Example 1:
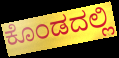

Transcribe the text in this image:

ಕೊಂಡದಲ್ಲಿ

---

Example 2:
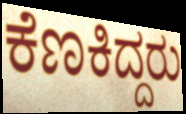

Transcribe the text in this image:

ಕೆಣಕಿದ್ದರು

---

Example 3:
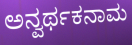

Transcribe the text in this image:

ಅನ್ವರ್ಥಕನಾಮ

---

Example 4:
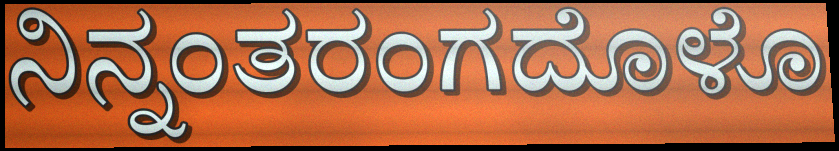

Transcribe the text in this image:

ನಿನ್ನಂತರಂಗದೊಳೊ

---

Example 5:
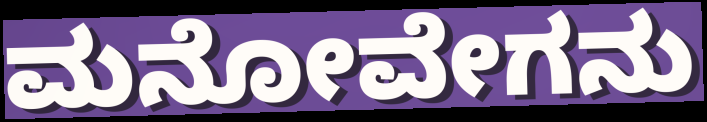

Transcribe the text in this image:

ಮನೋವೇಗನು